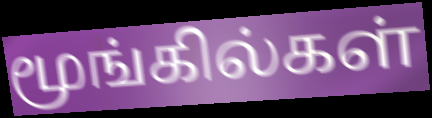
மூங்கில்கள்